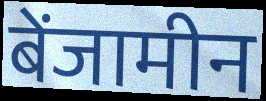
बेंजामीन